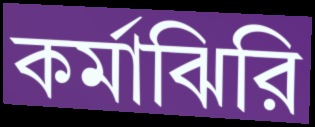
কর্মাঝিরি